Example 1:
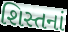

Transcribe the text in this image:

શિસ્તનાં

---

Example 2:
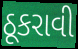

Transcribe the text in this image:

ઠૂકરાવી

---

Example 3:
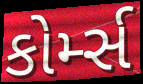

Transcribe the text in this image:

કોર્મ્સ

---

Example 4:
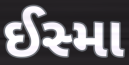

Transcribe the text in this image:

ઈસ્મા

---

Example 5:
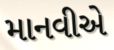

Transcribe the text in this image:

માનવીએ